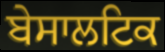
ਬੇਸਾਲਟਿਕ